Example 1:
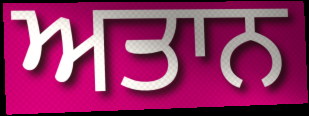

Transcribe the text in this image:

ਅਤਾਨ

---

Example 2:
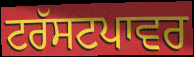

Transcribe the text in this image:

ਟਰੱਸਟਪਾਵਰ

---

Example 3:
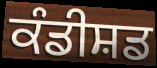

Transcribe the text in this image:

ਕੰਡੀਸ਼ਡ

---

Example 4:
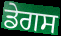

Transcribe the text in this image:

ਡੇਗਸ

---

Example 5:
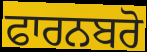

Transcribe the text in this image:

ਫਾਰਨਬਰੋ